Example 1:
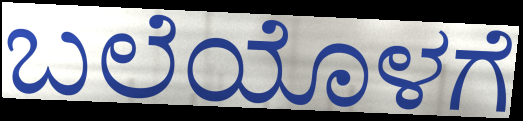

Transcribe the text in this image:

ಬಲೆಯೊಳಗೆ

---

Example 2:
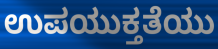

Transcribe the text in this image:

ಉಪಯುಕ್ತತೆಯು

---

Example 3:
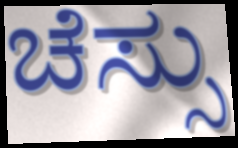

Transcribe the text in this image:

ಚೆಸ್ಸು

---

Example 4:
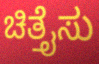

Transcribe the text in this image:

ಚಿತ್ತೈಸು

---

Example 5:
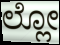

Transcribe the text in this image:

ಲ್ಲೋ